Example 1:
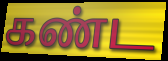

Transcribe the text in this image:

கண்ட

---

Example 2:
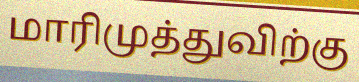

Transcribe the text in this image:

மாரிமுத்துவிற்கு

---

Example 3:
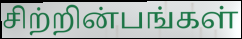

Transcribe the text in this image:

சிற்றின்பங்கள்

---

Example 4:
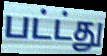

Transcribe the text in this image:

பட்ட்து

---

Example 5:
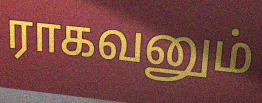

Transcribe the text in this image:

ராகவனும்